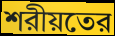
শরীয়তের